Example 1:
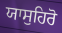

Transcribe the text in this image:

ਯਾਸੁਹਿਰੋ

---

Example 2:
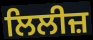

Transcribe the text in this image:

ਲਿਲੀਜ਼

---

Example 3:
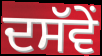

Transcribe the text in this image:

ਦਸੱਵੇਂ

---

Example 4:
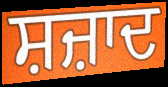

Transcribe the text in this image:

ਸ਼ਜ਼ਾਦ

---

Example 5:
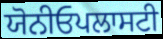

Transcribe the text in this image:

ਯੋਨੀਓਪਲਾਸਟੀ